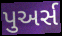
પુઅર્સ